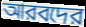
আরবদের